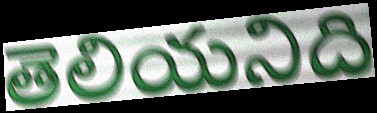
తెలియనిది